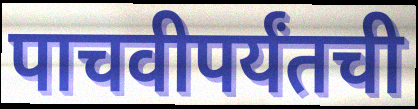
पाचवीपर्यंतची